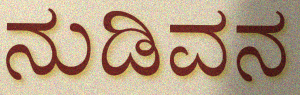
ನುಡಿವನ